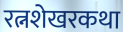
रत्नशेखरकथा